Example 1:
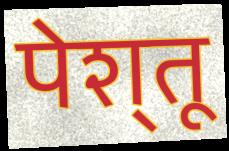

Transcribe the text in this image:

पेश्तू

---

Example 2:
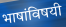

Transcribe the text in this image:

भाषांविषयी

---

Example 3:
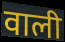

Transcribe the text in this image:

वाली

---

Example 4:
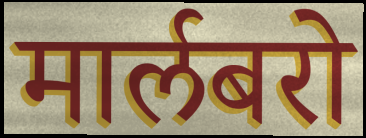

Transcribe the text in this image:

मार्लबरो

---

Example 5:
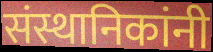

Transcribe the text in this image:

संस्थानिकांनी